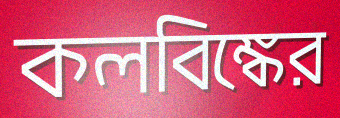
কলবিঙ্কের